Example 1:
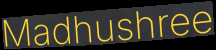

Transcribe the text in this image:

Madhushree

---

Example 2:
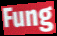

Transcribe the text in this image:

Fung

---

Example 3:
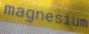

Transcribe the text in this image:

magnesium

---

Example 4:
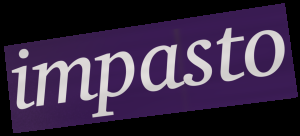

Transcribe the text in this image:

impasto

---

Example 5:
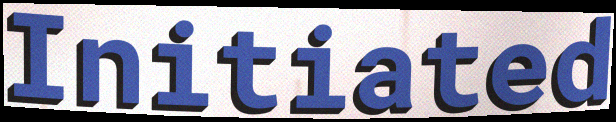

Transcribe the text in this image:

Initiated